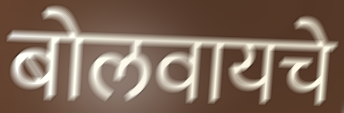
बोलवायचे